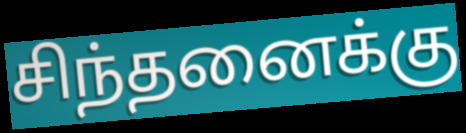
சிந்தனைக்கு